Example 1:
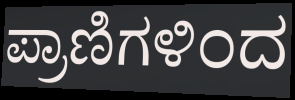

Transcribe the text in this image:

ಪ್ರಾಣಿಗಳಿಂದ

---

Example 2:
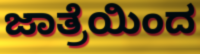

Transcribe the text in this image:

ಜಾತ್ರೆಯಿಂದ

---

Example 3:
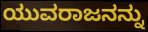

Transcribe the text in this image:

ಯುವರಾಜನನ್ನು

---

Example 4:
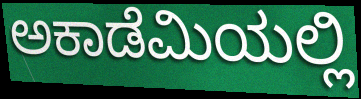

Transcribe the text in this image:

ಅಕಾಡೆಮಿಯಲ್ಲಿ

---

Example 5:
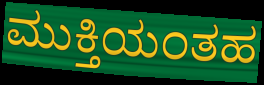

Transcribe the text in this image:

ಮುಕ್ತಿಯಂತಹ